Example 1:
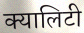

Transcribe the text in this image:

क्यालिटी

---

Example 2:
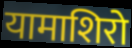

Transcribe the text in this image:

यामाशिरो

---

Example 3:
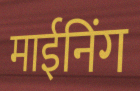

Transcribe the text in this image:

माईनिंग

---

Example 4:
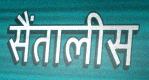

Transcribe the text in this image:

सैंतालीस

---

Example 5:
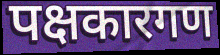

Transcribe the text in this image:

पक्षकारगण